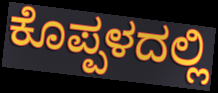
ಕೊಪ್ಪಳದಲ್ಲಿ